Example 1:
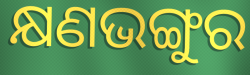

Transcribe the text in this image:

କ୍ଷଣଭଙ୍ଗୁର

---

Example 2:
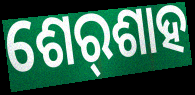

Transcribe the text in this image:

ଶେର୍‌ଶାହ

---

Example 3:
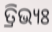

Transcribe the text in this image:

ତ୍ରିଭ୍ୟଃ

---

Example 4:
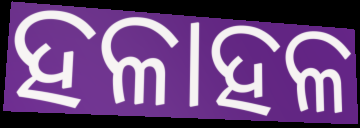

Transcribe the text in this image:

ହଳାହଳ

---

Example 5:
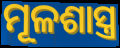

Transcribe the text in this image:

ମୂଳଶାସ୍ତ୍ର